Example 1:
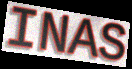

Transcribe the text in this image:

INAS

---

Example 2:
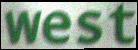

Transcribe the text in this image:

west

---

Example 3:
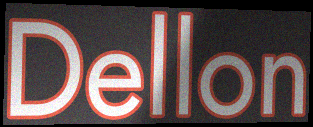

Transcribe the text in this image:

Dellon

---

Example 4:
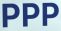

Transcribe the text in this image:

PPP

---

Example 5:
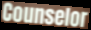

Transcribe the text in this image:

Counselor